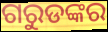
ଗରୁଡଙ୍କର